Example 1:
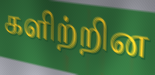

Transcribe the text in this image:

களிற்றின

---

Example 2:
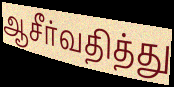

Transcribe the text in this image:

ஆசீர்வதித்து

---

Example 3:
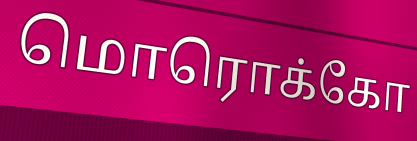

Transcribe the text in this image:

மொரொக்கோ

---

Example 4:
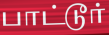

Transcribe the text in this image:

பாட்டூர்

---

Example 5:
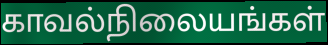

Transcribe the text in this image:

காவல்நிலையங்கள்